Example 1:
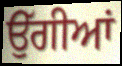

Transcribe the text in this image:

ਉੱਗੀਆਂ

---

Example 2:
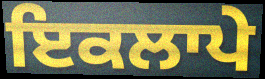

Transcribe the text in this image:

ਇਕਲਾਪੇ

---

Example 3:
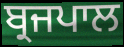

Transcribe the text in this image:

ਬ੍ਰਜਪਾਲ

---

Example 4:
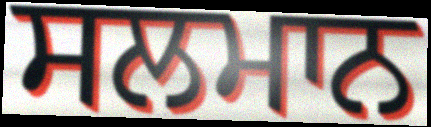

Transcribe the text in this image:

ਸਲਮਾਨ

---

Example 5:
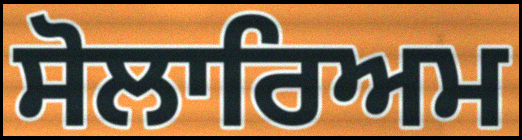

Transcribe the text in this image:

ਸੋਲਾਰਿਅਮ